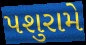
પશુરામે